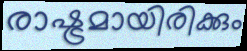
രാഷ്ട്രമായിരിക്കും